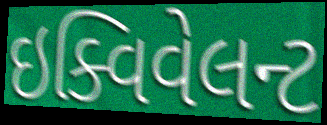
ઇક્વિવેલન્ટ